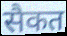
सैकत